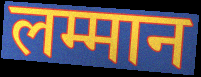
लम्मान